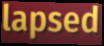
lapsed